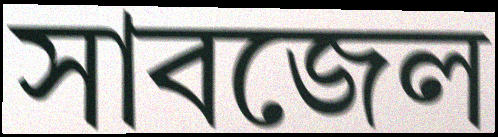
সাবজেল